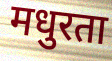
मधुरता